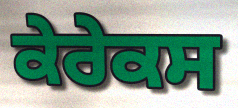
ਕੇਰੇਕਸ